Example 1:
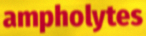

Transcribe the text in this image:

ampholytes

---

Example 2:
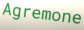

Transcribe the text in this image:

Agremone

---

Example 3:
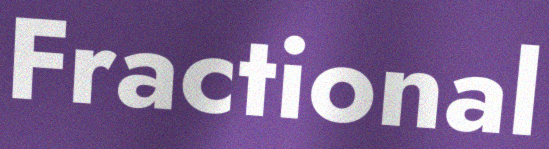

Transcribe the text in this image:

Fractional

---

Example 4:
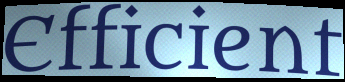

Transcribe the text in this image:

Efficient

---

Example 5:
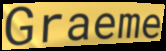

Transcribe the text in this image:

Graeme